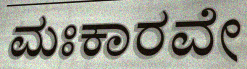
ಮಃಕಾರವೇ